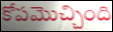
కోపమొచ్చింది